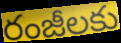
రంజీలకు